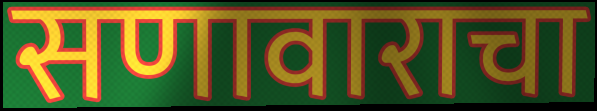
सणावाराचा